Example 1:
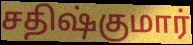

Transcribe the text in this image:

சதிஷ்குமார்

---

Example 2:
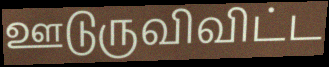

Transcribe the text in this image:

ஊடுருவிவிட்ட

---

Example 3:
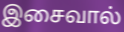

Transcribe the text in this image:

இசைவால்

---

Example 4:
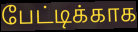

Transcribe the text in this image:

பேட்டிக்காக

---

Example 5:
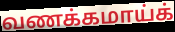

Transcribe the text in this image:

வணக்கமாய்க்